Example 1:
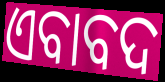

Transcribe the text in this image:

ଏବାବଦ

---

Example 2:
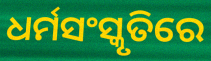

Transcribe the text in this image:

ଧର୍ମସଂସ୍କୃତିରେ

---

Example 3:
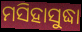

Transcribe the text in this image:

ମସିହାସୁଦ୍ଧା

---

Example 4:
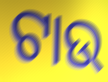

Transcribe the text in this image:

ଟାଉ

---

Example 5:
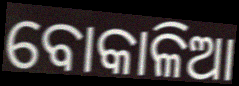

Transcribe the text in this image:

ବୋକାଳିଆ